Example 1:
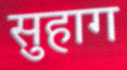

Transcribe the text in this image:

सुहाग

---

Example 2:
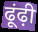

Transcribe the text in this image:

ढूंढ़ी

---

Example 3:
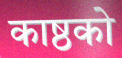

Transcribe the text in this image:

काष्ठको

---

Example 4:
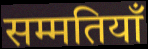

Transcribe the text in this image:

सम्मतियाँ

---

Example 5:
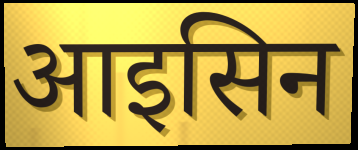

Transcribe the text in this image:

आइसिन